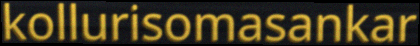
kollurisomasankar